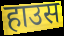
हाउस